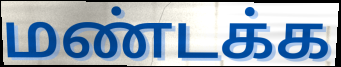
மண்டக்க